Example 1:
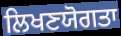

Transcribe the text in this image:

ਲਿਖਣਯੋਗਤਾ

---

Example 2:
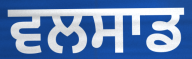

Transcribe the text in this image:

ਵਲਸਾਡ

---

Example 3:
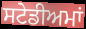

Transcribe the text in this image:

ਸਟੇਡੀਅਮਾਂ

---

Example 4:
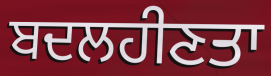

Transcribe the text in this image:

ਬਦਲਹੀਣਤਾ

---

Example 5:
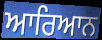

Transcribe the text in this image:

ਆਰਿਆਨ